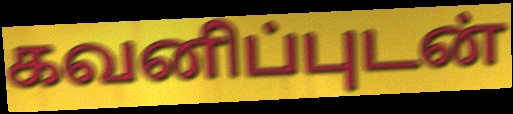
கவனிப்புடன்